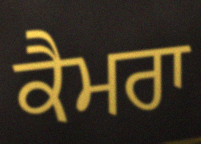
ਕੈਮਰਾ